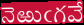
నెఱుఁగవే